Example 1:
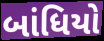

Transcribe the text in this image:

બાંધિયો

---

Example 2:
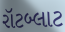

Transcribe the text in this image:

રૉટબ્લાટ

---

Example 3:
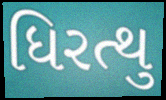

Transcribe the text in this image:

ધિરત્થુ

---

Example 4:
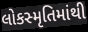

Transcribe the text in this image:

લોકસ્મૃતિમાંથી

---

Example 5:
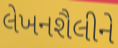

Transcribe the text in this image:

લેખનશૈલીને